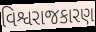
વિશ્વરાજકારણ